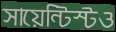
সায়েন্টিস্টও